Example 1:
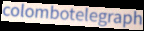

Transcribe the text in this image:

colombotelegraph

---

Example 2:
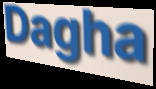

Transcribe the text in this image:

Dagha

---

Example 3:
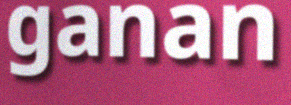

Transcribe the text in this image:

ganan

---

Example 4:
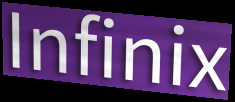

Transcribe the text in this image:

Infinix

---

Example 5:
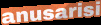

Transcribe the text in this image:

anusarisi